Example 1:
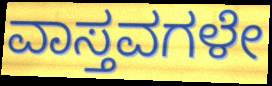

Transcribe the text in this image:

ವಾಸ್ತವಗಳೇ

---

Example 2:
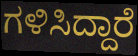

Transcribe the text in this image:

ಗಳಿಸಿದ್ದಾರೆ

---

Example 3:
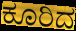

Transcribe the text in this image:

ಕೂರಿದ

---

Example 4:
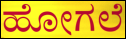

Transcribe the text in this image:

ಹೋಗಲೆ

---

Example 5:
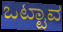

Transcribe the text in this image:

ಒಟ್ಟಾವ